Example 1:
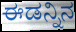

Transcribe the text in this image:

ಈಡನ್ನಿನ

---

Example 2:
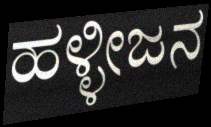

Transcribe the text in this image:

ಹಳ್ಳೀಜನ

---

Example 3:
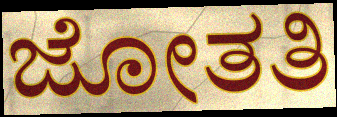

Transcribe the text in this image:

ಜೋತತಿ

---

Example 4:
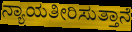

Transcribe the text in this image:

ನ್ಯಾಯತೀರಿಸುತ್ತಾನೆ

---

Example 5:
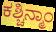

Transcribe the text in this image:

ಕಶ್ಚಿನ್ಮಾಂ